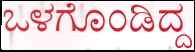
ಒಳಗೊಂಡಿದ್ದ